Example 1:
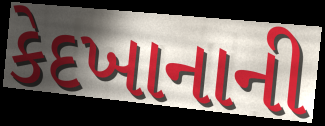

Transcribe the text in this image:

કેદખાનાની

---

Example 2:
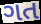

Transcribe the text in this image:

ગત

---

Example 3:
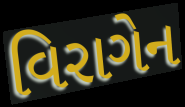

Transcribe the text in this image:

વિરાગેન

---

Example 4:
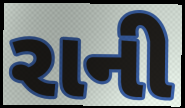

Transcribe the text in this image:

રાની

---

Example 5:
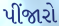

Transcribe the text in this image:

પીંજારો